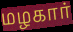
மழகார்